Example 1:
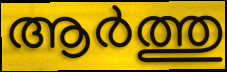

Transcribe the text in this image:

ആർത്തു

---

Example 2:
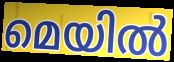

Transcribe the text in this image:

മെയിൽ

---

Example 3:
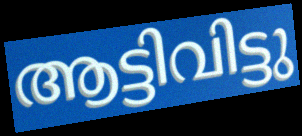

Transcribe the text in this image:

ആട്ടിവിട്ടു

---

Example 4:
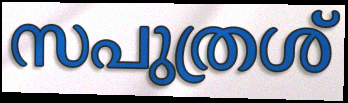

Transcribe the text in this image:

സപുത്രശ്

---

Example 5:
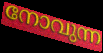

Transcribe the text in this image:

നോവുന്ന